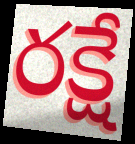
రక్షే